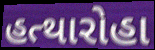
હત્થારોહા